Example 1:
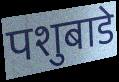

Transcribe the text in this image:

पशुबाडे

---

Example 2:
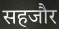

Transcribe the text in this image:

सहजौर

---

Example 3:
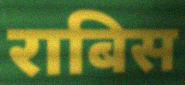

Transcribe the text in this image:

राबिस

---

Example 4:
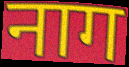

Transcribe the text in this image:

नाग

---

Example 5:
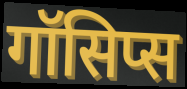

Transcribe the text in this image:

गॉसिप्स